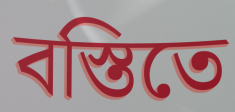
বস্তিতে